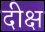
दीक्ष